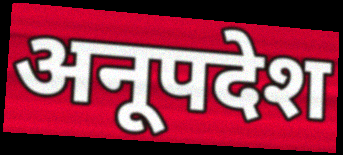
अनूपदेश